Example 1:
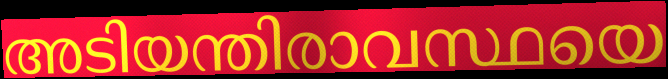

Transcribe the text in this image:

അടിയന്തിരാവസ്ഥയെ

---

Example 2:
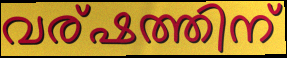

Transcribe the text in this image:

വര്ഷത്തിന്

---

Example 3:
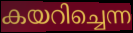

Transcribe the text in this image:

കയറിച്ചെന്ന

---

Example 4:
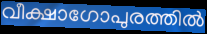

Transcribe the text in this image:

വീക്ഷാഗോപുരത്തിൽ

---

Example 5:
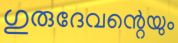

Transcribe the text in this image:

ഗുരുദേവന്റെയും